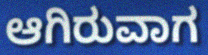
ಆಗಿರುವಾಗ